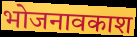
भोजनावकाश